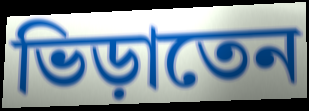
ভিড়াতেন